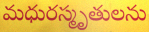
మధురస్మృతులను